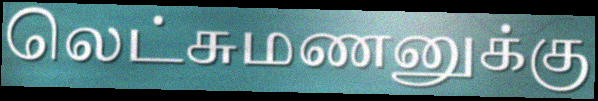
லெட்சுமணனுக்கு